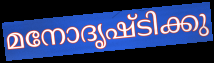
മനോദൃഷ്ടിക്കു